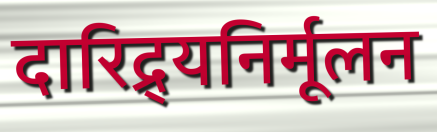
दारिद्र्यनिर्मूलन